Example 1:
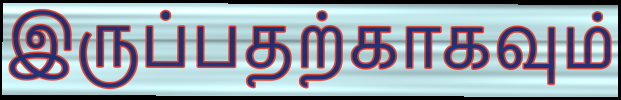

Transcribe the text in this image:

இருப்பதற்காகவும்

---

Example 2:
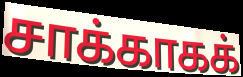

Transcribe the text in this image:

சாக்காகக்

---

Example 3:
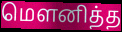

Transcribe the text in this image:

மௌனித்த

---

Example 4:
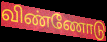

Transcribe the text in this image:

விண்ணோடு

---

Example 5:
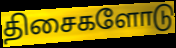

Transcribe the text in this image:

திசைகளோடு